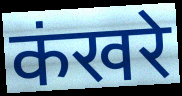
कंखरे